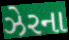
ઝેરના